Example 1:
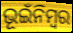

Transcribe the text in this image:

ଭୂଇଁନିମ୍ବର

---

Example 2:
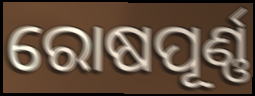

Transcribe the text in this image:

ରୋଷପୂର୍ଣ୍ଣ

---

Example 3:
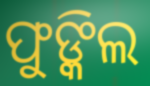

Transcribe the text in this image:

ଫୁଙ୍କିଲ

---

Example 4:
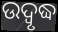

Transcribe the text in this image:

ଉଦ୍ବୃଦ୍ଧ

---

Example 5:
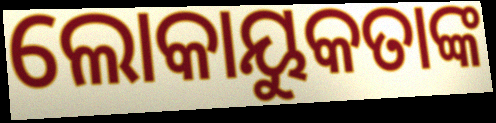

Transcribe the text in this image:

ଲୋକାୟୁକତାଙ୍କ